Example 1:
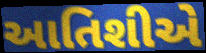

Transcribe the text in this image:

આતિશીએ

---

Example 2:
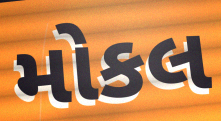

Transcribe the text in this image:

મોકલ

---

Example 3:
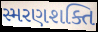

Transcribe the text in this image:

સ્મરણશક્તિ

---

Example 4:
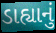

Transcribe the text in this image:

ડાહ્યાનું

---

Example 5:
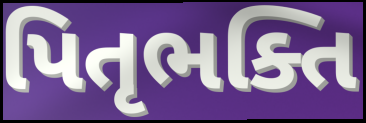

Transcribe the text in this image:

પિતૃભક્તિ